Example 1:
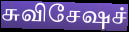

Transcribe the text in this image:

சுவிசேஷச்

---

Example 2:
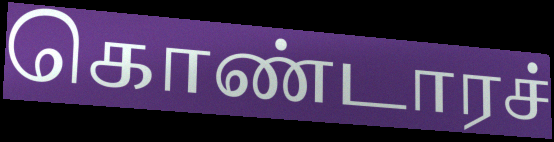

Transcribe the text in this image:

கொண்டாரச்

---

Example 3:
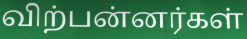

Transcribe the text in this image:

விற்பன்னர்கள்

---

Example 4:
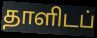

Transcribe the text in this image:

தாளிடப்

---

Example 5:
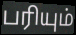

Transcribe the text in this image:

பரியும்